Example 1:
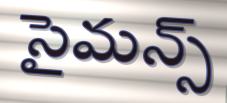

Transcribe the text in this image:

సైమన్స్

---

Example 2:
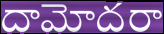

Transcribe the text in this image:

దామోదరా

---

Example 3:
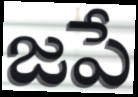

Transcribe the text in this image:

జపే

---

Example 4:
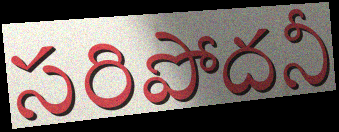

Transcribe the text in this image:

సరిపోదనీ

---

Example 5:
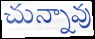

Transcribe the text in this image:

చున్నావు